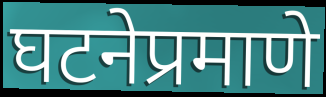
घटनेप्रमाणे